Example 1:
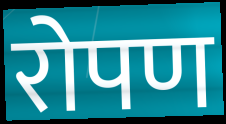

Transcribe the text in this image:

रोपण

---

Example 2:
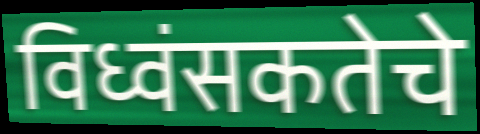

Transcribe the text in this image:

विध्वंसकतेचे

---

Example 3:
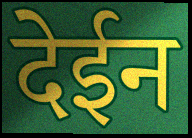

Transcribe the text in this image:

देईन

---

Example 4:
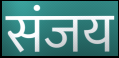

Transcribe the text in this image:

संजय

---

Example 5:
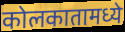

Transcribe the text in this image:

कोलकातामध्ये